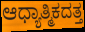
ಆಧ್ಯಾತ್ಮಿಕದತ್ತ